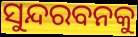
ସୁନ୍ଦରବନକୁ